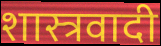
शास्त्रवादी